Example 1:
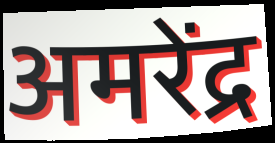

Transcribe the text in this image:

अमरेंद्र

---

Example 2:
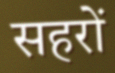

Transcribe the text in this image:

सहरों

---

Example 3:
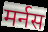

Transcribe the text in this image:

मर्नस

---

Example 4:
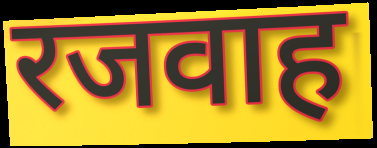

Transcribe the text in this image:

रजवाह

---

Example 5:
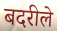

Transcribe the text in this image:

बदरीले